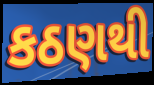
કઠણથી